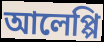
আলেপ্পি